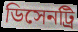
ডিসেনট্রি